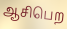
ஆசிபெற